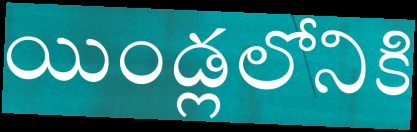
యిండ్లలోనికి